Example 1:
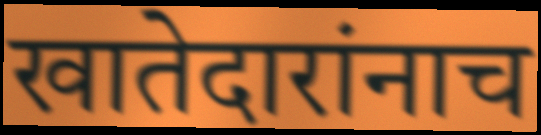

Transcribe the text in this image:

खातेदारांनाच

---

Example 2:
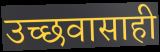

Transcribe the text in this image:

उच्छवासाही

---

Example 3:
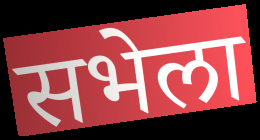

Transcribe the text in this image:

सभेला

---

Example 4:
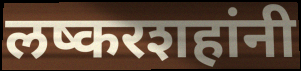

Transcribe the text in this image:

लष्करशहांनी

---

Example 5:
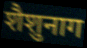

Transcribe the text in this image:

शैशुनाग